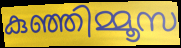
കുഞ്ഞിമ്മൂസ